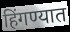
हिंगण्यात